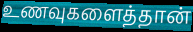
உணவுகளைத்தான்